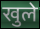
खुले